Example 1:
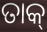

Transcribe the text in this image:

ତାକ୍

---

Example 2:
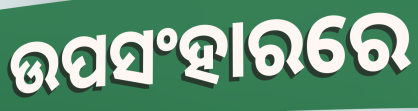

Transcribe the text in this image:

ଉପସଂହାରରେ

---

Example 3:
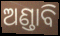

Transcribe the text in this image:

ଅଣ୍ଡାବି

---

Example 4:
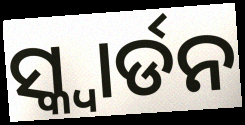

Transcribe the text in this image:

ସ୍କ୍ବାର୍ଡନ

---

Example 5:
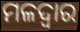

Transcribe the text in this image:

ମଳଦ୍ୱାର